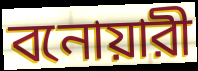
বনোয়ারী